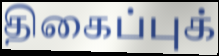
திகைப்புக்